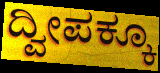
ದ್ವೀಪಕ್ಕೂ